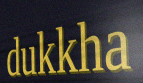
dukkha